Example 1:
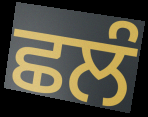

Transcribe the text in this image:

ਛਲੰ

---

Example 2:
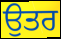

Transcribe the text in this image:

ਉਤਰ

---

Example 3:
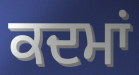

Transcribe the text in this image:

ਕਦਮਾਂ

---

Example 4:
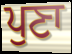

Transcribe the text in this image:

ਪੁਣਾ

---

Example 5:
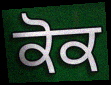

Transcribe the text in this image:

ਕੋਕ